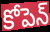
కోపెన్